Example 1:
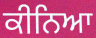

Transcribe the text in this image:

ਕੀਨਿਆ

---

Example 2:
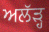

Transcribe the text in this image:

ਅਲੱੜ੍ਹ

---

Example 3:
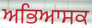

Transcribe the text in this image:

ਅਭਿਆਸਕ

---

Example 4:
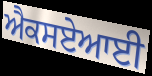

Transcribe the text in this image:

ਐਕਸਏਆਈ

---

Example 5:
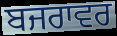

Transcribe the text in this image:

ਬਜਰਾਵਰ